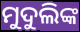
ମୁଦୁଲିଙ୍କ